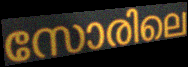
സോരിലെ